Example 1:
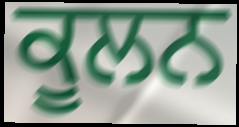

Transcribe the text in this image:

ਕੂਲਨ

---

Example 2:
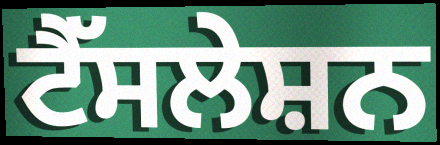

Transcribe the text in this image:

ਟੈੱਸਲੇਸ਼ਨ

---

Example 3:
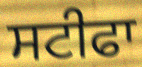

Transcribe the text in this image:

ਸਟੀਫਾ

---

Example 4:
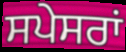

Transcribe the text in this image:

ਸਪੇਸਰਾਂ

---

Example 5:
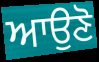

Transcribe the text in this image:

ਆਉਣੋ